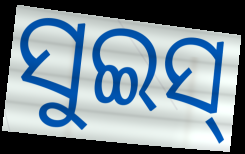
ସୁଇସ୍